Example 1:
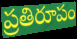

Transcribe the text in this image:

ప్రతిరూపం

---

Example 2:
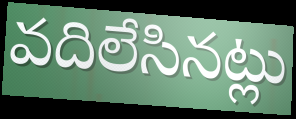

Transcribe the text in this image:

వదిలేసినట్లు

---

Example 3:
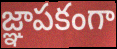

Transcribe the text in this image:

జ్ఞాపకంగా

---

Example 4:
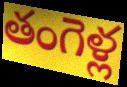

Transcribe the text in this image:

తంగెళ్ల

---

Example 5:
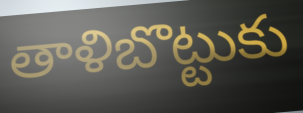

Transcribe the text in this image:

తాళిబొట్టుకు